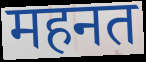
महनत